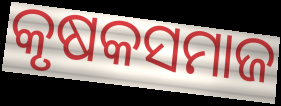
କୃଷକସମାଜ